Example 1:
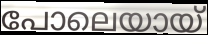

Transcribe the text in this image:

പോലെയായ്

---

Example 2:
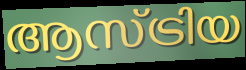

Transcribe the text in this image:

ആസ്ട്രിയ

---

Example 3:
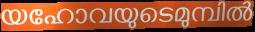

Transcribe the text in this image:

യഹോവയുടെമുമ്പിൽ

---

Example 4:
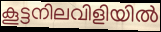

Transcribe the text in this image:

കൂട്ടനിലവിളിയിൽ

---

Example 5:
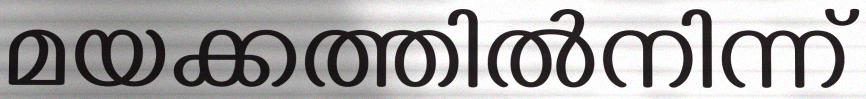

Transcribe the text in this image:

മയക്കത്തിൽനിന്ന്